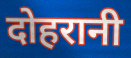
दोहरानी